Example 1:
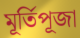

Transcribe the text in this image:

মূর্তিপূজা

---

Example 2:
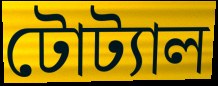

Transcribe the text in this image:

টোট্যাল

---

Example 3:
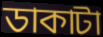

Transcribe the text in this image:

ডাকাটা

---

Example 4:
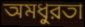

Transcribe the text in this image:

অমধুরতা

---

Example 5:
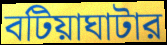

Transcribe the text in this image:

বটিয়াঘাটার